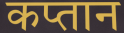
कप्‍तान